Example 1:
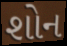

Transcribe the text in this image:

શોન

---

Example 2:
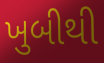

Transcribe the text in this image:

ખુબીથી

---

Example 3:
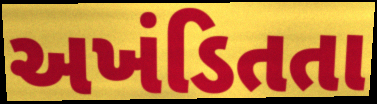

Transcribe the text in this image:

અખંડિતતા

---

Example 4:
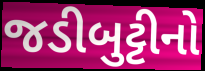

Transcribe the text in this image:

જડીબુટ્ટીનો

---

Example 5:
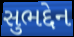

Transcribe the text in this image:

સુભદ્દેન